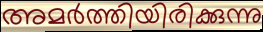
അമർത്തിയിരിക്കുന്നു